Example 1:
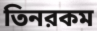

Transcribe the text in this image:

তিনরকম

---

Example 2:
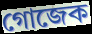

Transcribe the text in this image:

গোজেক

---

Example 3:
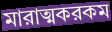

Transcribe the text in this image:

মারাত্মকরকম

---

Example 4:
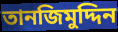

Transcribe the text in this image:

তানজিমুদ্দিন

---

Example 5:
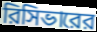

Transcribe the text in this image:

রিসিভারের